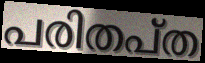
പരിതപ്ത